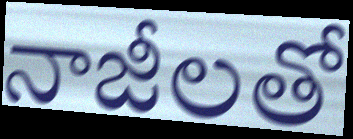
నాజీలతో